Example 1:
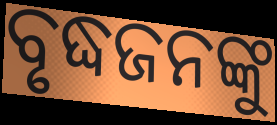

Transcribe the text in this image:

ବୃଦ୍ଧଜନଙ୍କୁ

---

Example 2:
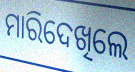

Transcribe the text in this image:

ମାରିଦେଖିଲେ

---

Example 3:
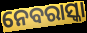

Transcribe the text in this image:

ନେବରାସ୍କା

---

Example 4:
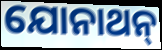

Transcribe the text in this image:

ଯୋନାଥନ୍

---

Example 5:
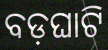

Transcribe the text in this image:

ବଡ଼ଘାଟି